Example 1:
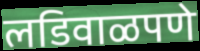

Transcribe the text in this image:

लडिवाळपणे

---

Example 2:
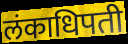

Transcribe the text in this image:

लंकाधिपती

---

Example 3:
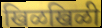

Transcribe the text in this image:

खिळखिळी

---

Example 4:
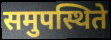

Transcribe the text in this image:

समुपस्थिते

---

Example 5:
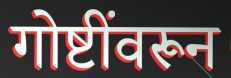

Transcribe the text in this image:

गोष्टींवरून